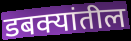
डबक्यांतील